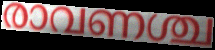
രാവണശ്ച